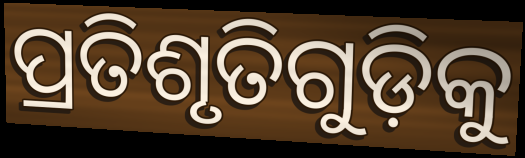
ପ୍ରତିଶୃତିଗୁଡ଼ିକୁ